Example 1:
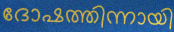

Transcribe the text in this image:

ദോഷത്തിന്നായി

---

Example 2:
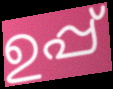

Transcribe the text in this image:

ഉപ്പ്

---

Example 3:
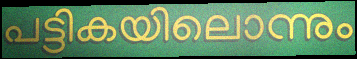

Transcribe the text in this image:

പട്ടികയിലൊന്നും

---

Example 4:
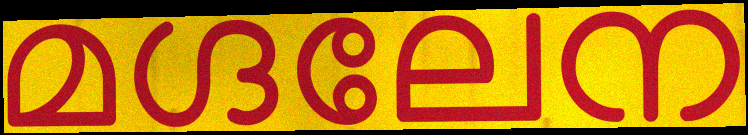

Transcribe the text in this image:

മഗ്ദലേന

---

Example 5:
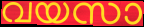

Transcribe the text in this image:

വയസാ